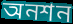
অনশন